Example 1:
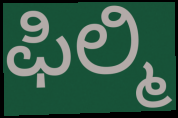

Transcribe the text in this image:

ಫಿಲ್ಮಿ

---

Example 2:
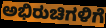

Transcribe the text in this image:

ಅಭಿರುಚಿಗಳಿಗೆ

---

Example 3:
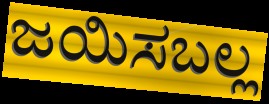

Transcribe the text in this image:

ಜಯಿಸಬಲ್ಲ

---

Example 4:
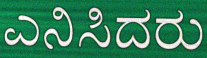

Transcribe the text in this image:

ಎನಿಸಿದರು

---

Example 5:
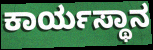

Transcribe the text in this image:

ಕಾರ್ಯಸ್ಥಾನ